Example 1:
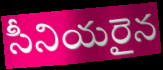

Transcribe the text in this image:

సీనియరైన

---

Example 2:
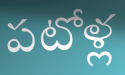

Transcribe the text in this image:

పటోళ్ల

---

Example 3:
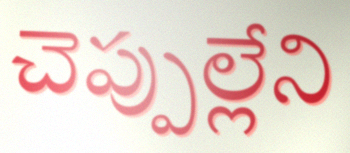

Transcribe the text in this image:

చెప్పుల్లేని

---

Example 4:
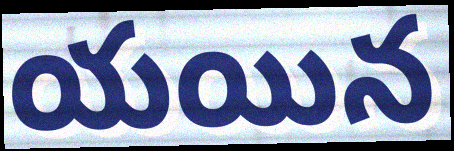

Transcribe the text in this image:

యయిన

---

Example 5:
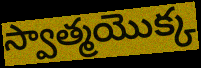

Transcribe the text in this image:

స్వాత్మయొక్క